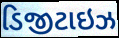
ડિજીટાઇઝ